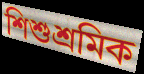
শিশুশ্ৰমিক